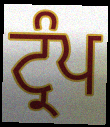
ਟ੍ਰੰਪ